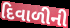
દિવાળીની